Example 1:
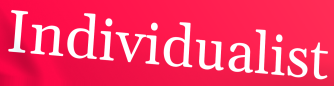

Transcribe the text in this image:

Individualist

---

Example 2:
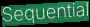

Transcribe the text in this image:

Sequential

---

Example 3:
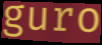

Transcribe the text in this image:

guro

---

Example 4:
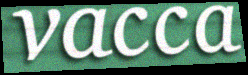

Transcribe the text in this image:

vacca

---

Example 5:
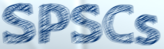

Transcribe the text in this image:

SPSCs